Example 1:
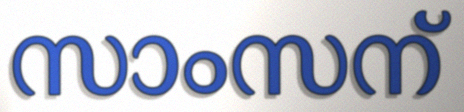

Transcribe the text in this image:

സാംസന്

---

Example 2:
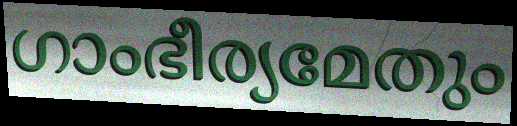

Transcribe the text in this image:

ഗാംഭീര്യമേതും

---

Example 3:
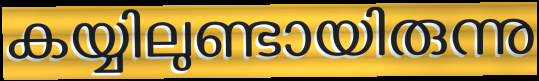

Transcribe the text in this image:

കയ്യിലുണ്ടായിരുന്നു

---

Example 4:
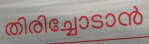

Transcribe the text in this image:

തിരിച്ചോടാൻ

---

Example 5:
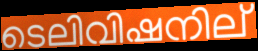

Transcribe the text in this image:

ടെലിവിഷനില്